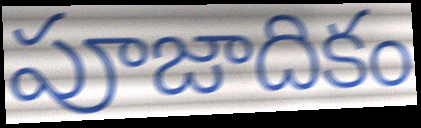
పూజాదికం